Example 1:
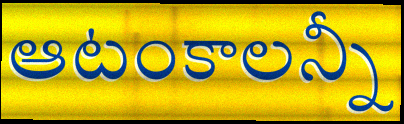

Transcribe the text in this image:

ఆటంకాలన్నీ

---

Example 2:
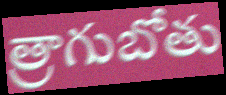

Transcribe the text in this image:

త్రాగుబోతు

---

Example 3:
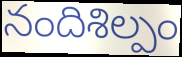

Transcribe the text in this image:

నందిశిల్పం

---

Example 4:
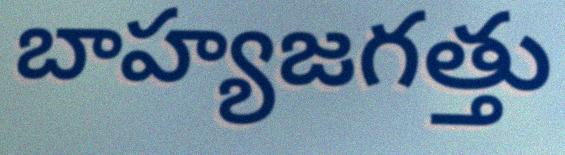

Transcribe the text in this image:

బాహ్యజగత్తు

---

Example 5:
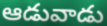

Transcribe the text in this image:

ఆడువాడు